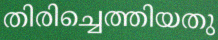
തിരിച്ചെത്തിയതു